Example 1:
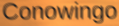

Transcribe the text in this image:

Conowingo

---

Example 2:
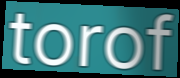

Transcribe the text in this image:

torof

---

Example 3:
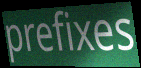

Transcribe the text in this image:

prefixes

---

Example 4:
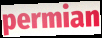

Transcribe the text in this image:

permian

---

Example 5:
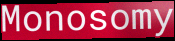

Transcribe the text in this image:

Monosomy